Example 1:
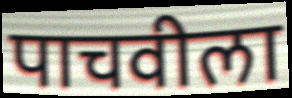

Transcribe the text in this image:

पाचवीला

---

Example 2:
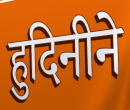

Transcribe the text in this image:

हुदिनीने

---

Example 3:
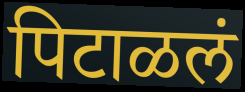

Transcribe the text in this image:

पिटाळलं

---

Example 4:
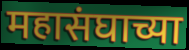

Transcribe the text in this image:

महासंघाच्या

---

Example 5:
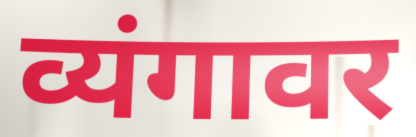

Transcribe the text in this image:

व्यंगावर